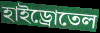
হাইড্রোতেল